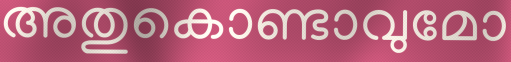
അതുകൊണ്ടാവുമോ